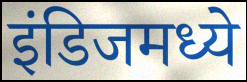
इंडिजमध्ये